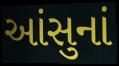
આંસુનાં